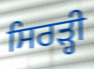
ਸਿਰੜ੍ਹੀ